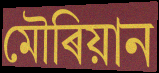
মৌৰিয়ান